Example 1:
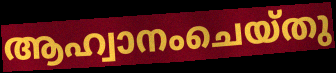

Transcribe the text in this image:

ആഹ്വാനംചെയ്തു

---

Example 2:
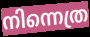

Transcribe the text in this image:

നിന്നെത്ര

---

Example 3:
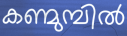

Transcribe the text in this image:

കണ്മുമ്പിൽ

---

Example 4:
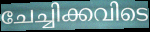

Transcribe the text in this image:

ചേച്ചിക്കവിടെ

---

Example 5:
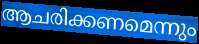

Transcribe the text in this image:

ആചരിക്കണമെന്നും